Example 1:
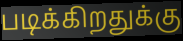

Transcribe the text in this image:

படிக்கிறதுக்கு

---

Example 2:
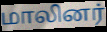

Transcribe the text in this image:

மாலினர்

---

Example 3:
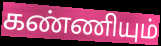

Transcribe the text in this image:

கண்ணியும்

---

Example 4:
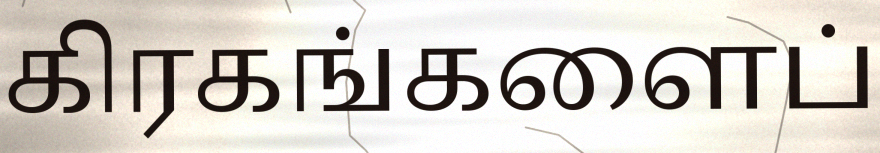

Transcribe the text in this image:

கிரகங்களைப்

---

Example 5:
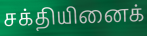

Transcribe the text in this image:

சக்தியினைக்